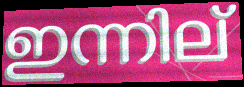
ഇന്നില്